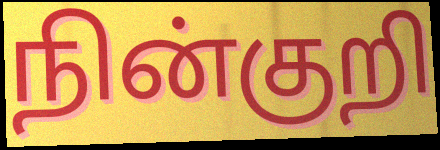
நின்குறி